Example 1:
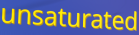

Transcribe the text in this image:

unsaturated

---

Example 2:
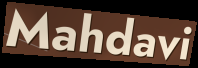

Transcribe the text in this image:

Mahdavi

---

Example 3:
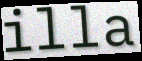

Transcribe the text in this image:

illa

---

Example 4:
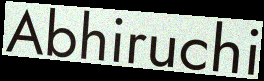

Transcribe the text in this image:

Abhiruchi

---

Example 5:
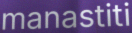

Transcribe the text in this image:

manastiti